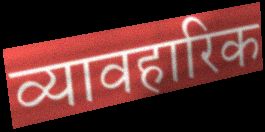
व्यावहारिक